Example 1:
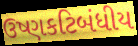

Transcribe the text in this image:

ઉષ્ણકટિબંધીય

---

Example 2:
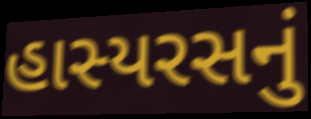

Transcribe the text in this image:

હાસ્યરસનું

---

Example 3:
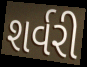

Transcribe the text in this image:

શર્વરી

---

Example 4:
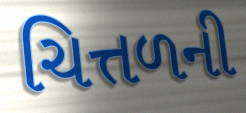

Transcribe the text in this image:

ચિત્તળની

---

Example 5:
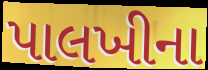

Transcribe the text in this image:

પાલખીના